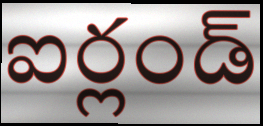
ఐర్లండ్